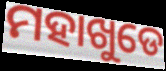
ମହାଖୁଡେ